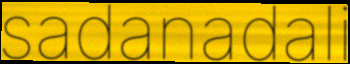
sadanadali